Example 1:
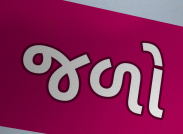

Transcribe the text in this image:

જળો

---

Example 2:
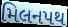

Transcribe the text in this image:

મિલનપથ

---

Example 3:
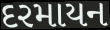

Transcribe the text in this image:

દરમાયન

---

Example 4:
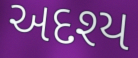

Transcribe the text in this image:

અદશ્ય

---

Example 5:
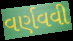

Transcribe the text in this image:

વર્ણવવી